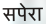
सपेरा